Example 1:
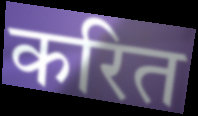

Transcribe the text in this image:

करित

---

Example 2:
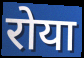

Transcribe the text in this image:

रोया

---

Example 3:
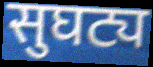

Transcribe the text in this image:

सुघट्य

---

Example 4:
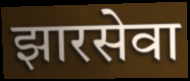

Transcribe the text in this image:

झारसेवा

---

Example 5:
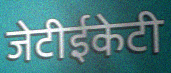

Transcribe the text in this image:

जेटीईकेटी